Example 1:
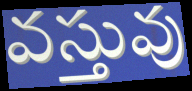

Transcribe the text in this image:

వస్తువు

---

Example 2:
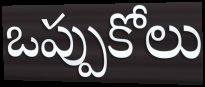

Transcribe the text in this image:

ఒప్పుకోలు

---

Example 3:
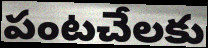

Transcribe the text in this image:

పంటచేలకు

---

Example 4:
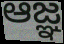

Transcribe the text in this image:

ఆజ్ఞ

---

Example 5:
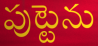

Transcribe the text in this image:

పుట్టెను